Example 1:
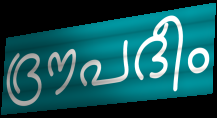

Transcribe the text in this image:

ദ്രൗപദീം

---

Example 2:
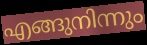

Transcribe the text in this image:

എങ്ങുനിന്നും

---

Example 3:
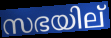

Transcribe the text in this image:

സഭയില്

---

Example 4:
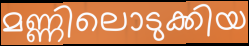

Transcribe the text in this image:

മണ്ണിലൊടുക്കിയ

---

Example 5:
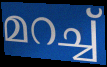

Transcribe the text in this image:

മറച്ച്